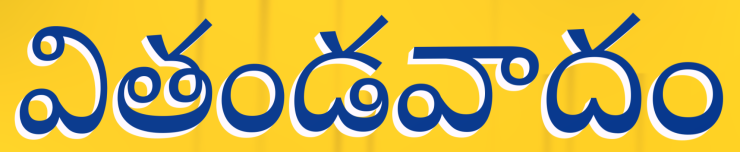
వితండవాదం